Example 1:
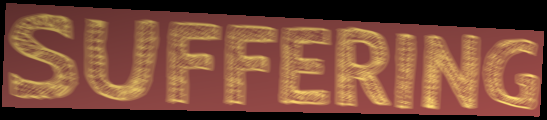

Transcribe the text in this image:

SUFFERING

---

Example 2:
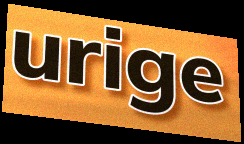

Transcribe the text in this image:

urige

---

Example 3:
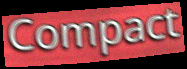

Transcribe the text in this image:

Compact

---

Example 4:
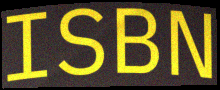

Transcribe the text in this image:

ISBN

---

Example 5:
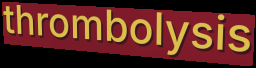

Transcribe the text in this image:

thrombolysis